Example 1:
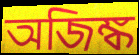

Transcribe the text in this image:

অজিঙ্ক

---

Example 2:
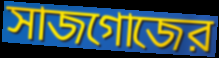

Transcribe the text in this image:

সাজগোজের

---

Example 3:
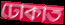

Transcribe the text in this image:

ঢোকাত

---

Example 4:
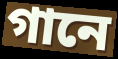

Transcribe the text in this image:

গানে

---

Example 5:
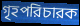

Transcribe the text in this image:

গৃহপরিচারক